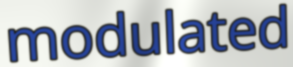
modulated